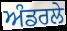
ਅੰਡਰਲੇ